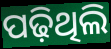
ପଢ଼ିଥିଲି